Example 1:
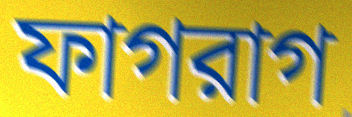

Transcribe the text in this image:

ফাগরাগ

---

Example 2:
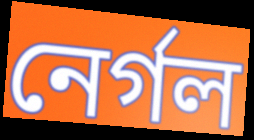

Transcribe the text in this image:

নের্গল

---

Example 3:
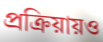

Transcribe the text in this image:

প্রক্রিয়ায়ও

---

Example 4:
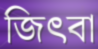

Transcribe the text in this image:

জিৎবা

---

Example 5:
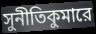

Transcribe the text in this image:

সুনীতিকুমারে